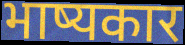
भाष्यकार